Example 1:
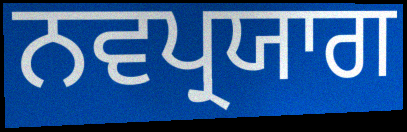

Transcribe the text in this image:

ਨਵਪ੍ਰਯਾਗ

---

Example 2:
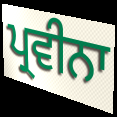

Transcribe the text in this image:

ਪ੍ਰਵੀਨਾ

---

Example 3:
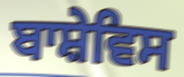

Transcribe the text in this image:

ਬਾਸ਼ੇਵਿਸ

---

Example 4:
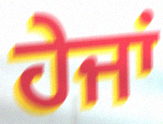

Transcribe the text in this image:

ਹੇਜਾਂ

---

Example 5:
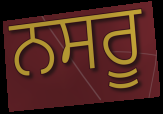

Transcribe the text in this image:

ਨਸਰੂ